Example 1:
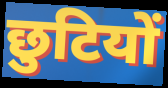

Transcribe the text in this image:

छुटियों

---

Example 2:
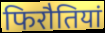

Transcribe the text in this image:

फिरौतियां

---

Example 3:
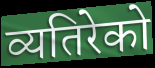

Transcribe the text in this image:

व्यतिरेको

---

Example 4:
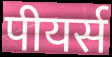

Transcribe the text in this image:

पीयर्स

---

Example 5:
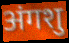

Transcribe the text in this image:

अंगशु